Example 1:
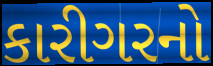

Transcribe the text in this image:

કારીગરનો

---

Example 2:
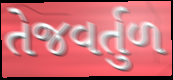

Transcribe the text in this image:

તેજવર્તુળ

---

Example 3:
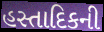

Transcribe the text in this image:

હસ્તાદિકની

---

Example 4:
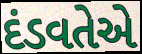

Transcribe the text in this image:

દંડવતેએ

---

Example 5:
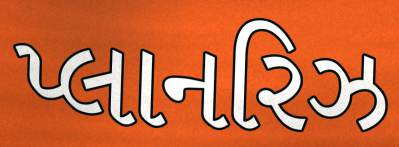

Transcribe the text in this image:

પ્લાનરિઝ